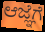
ಆಜ್ಞೆಗೆ